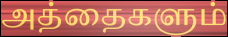
அத்தைகளும்